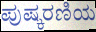
ಪುಷ್ಕರಣಿಯ